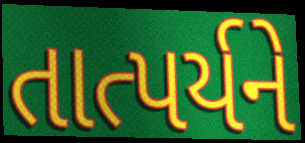
તાત્પર્યને